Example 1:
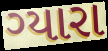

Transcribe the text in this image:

ગ્યારા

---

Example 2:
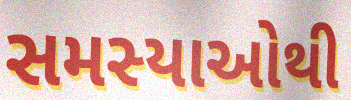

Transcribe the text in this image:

સમસ્યાઓથી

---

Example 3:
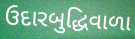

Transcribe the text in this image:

ઉદારબુદ્ધિવાળા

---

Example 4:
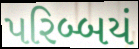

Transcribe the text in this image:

પરિબ્બયં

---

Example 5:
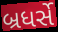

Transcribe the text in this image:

બ્રધર્સે